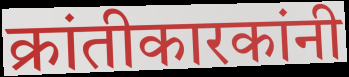
क्रांतीकारकांनी